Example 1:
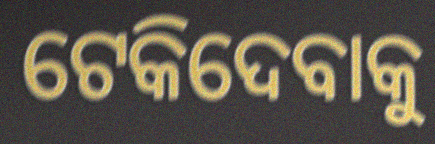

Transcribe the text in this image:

ଟେକିଦେବାକୁ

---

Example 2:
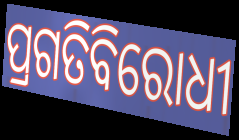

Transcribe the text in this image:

ପ୍ରଗତିବିରୋଧୀ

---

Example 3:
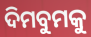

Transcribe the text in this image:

ଦିମବୁମକୁ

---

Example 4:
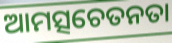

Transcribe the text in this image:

ଆମତ୍ସଚେତନତା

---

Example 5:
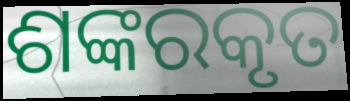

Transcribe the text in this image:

ଶଙ୍କରକୃତ